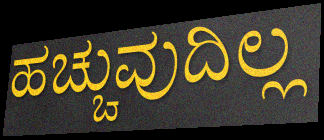
ಹಚ್ಚುವುದಿಲ್ಲ